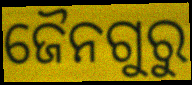
ଜୈନଗୁରୁ